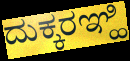
ದುಕ್ಕರಞ್ಹಿ